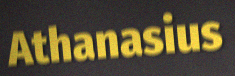
Athanasius